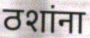
ठशांना